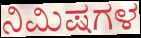
ನಿಮಿಷಗಳ